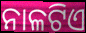
ନାଳଟିଏ